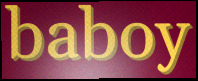
baboy